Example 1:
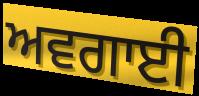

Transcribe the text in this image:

ਅਵਗਾਈ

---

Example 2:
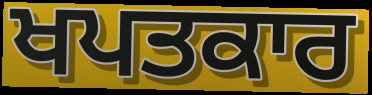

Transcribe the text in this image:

ਖਪਤਕਾਰ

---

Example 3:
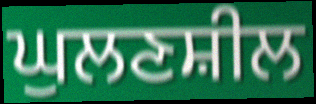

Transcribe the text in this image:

ਘੁਲਣਸ਼ੀਲ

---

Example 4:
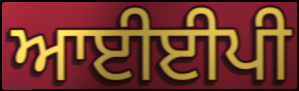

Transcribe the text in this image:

ਆਈਈਪੀ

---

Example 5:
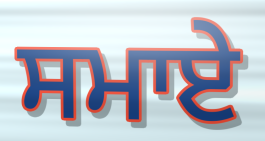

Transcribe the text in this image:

ਸਮਾਏ